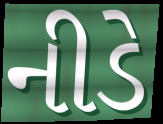
નીડે